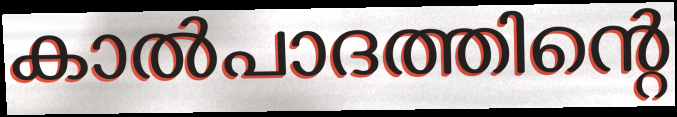
കാൽപാദത്തിന്റെ